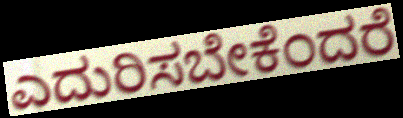
ಎದುರಿಸಬೇಕೆಂದರೆ